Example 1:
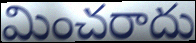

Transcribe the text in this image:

మించరాదు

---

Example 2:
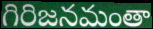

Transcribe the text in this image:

గిరిజనమంతా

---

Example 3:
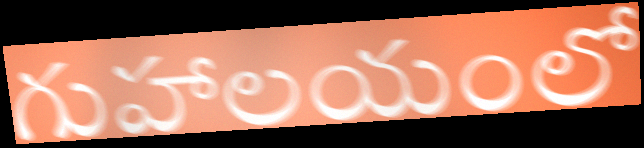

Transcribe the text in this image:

గుహాలయంలో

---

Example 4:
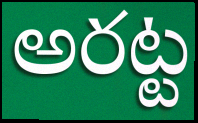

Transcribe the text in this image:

అరట్ట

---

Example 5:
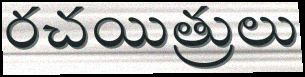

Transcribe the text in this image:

రచయిత్రులు